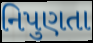
નિપુણતા